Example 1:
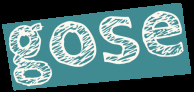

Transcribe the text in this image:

gose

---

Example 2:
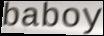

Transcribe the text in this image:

baboy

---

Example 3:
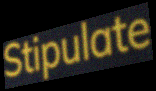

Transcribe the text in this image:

Stipulate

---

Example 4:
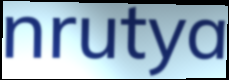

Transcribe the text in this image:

nrutya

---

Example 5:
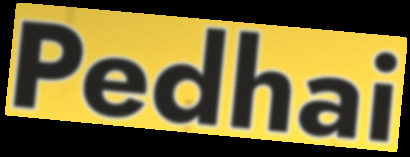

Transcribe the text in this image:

Pedhai